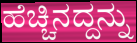
ಹೆಚ್ಚಿನದ್ದನ್ನು